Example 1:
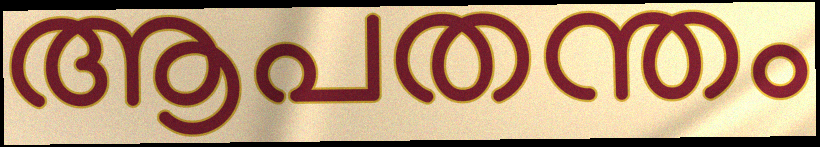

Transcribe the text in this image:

ആപതന്തം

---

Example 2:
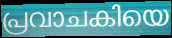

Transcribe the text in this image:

പ്രവാചകിയെ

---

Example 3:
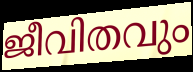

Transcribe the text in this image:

ജീവിതവും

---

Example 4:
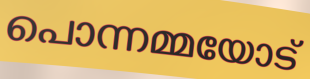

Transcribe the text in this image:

പൊന്നമ്മയോട്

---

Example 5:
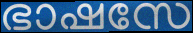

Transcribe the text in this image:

ഭാഷസേ